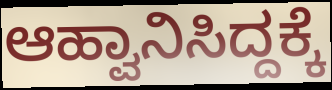
ಆಹ್ವಾನಿಸಿದ್ದಕ್ಕೆ